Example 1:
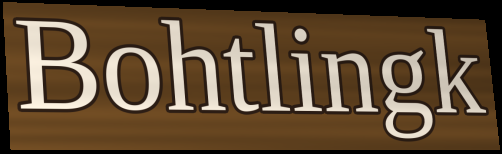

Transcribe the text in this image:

Bohtlingk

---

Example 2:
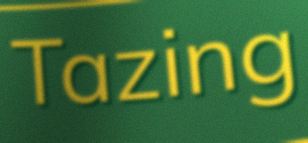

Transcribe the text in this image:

Tazing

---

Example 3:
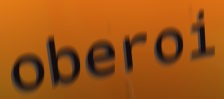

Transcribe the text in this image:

oberoi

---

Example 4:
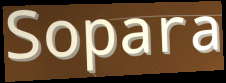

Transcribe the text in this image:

Sopara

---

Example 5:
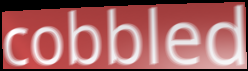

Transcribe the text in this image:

cobbled